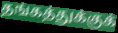
தங்கத்துக்குக்